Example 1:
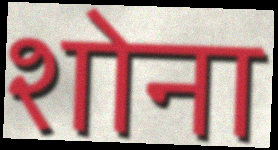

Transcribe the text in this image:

शोना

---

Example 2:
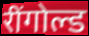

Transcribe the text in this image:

रींगोल्ड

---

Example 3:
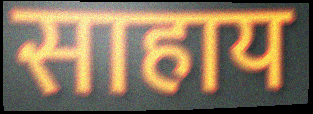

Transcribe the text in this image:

साहाय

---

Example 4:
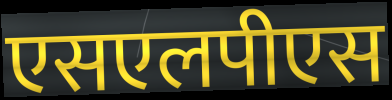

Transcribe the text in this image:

एसएलपीएस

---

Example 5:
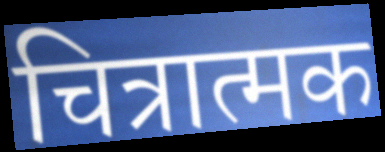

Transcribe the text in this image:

चित्रात्मक